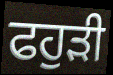
ਫਹੁੜੀ